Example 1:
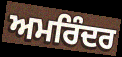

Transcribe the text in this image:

ਅਮਰਿੰਦਰ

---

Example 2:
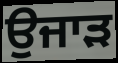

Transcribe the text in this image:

ਉਜਾੜ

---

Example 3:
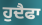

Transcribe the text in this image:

ਹੁਦੈਫਾ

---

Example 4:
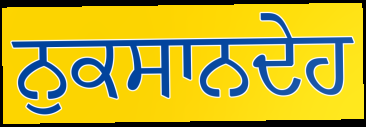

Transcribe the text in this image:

ਨੁਕਸਾਨਦੇਹ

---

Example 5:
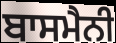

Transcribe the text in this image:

ਬਾਸਮੈਨੀ